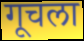
गूचला